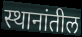
स्थानांतील